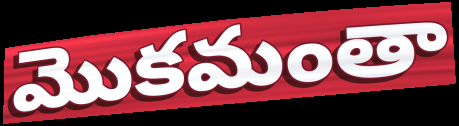
మొకమంతా